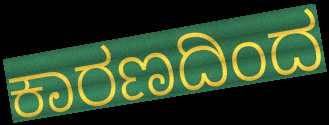
ಕಾರಣದಿಂದ